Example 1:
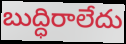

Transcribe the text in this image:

బుద్ధిరాలేదు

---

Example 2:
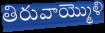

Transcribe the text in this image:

తిరువాయ్మొళి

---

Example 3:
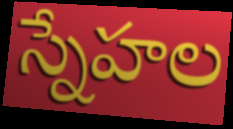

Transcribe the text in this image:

స్నేహల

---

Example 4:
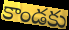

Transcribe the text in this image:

కాండకు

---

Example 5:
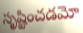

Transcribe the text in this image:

సృష్టించడమో